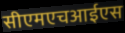
सीएमएचआईएस